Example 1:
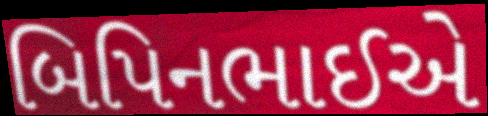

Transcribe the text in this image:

બિપિનભાઈએ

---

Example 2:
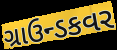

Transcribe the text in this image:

ગ્રાઉન્ડકવર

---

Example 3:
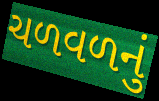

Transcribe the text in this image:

ચળવળનું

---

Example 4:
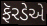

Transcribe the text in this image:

ફૅરડેએ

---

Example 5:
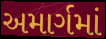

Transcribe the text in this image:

અમાર્ગમાં